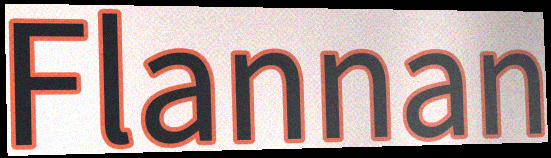
Flannan